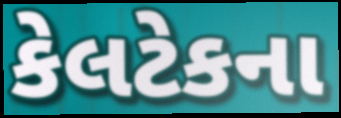
કેલટેકના